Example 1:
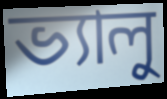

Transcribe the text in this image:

ভ্যালু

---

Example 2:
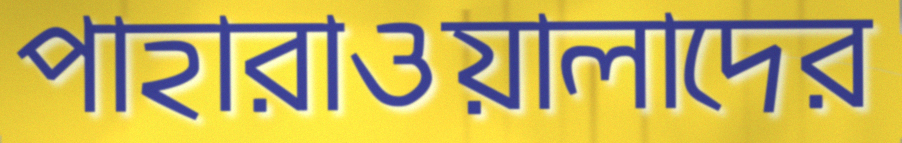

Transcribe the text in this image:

পাহারাওয়ালাদের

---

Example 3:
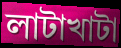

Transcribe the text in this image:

লাটাখাটা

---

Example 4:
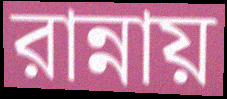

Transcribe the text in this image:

রান্নায়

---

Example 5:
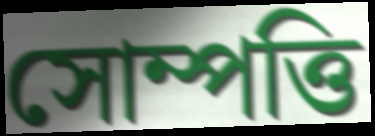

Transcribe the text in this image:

সোম্পত্তি